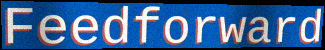
Feedforward